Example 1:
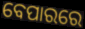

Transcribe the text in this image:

ବେପାରରେ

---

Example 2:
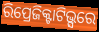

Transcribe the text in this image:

ରିପ୍ରେଜିକ୍ଟାଟିଭ୍ସରେ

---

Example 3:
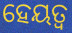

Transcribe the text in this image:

ହେୟତ୍ୱ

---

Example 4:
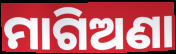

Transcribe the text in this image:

ମାଗିଅଣା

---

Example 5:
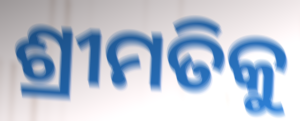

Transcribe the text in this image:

ଶ୍ରୀମତିକୁ